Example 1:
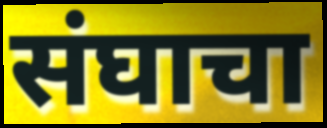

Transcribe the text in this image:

संघाचा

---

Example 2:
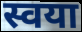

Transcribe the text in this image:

स्वया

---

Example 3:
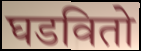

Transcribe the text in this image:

घडवितो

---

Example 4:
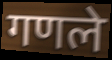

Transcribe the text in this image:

गणले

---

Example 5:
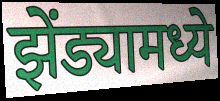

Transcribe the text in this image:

झेंड्यामध्ये